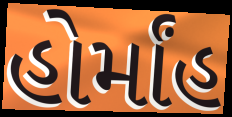
હોર્માંહ